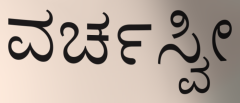
ವರ್ಚಸ್ವೀ